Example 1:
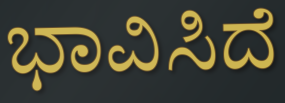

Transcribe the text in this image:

ಭಾವಿಸಿದೆ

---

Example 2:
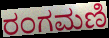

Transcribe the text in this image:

ರಂಗಮಣಿ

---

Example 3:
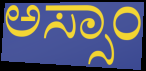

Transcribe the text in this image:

ಅಸ್ಸಾಂ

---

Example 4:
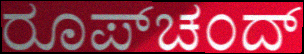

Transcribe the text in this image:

ರೂಪ್‌ಚಂದ್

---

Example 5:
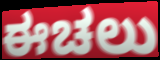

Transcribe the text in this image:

ಈಚಲು